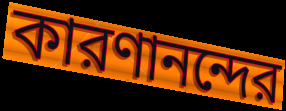
কারণানন্দের